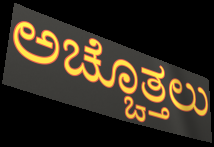
ಅಚ್ಚೊತ್ತಲು